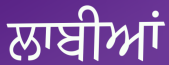
ਲਾਬੀਆਂ